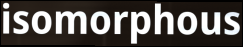
isomorphous